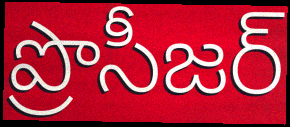
ప్రొసీజర్